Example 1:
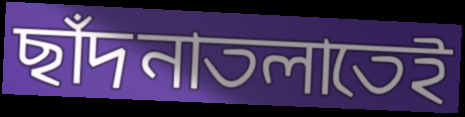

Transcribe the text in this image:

ছাঁদনাতলাতেই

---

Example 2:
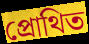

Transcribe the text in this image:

প্রোথিত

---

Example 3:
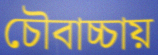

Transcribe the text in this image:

চৌবাচ্চায়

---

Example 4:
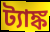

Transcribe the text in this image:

ট্যাঙ্ক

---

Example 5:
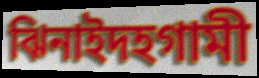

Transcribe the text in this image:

ঝিনাইদহগামী